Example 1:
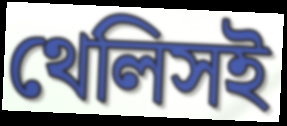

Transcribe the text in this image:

থেলিসই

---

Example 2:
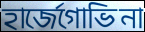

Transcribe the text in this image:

হার্জেগোভিনা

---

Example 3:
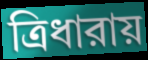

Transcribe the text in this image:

ত্রিধারায়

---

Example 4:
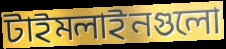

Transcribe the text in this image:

টাইমলাইনগুলো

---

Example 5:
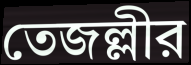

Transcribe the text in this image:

তেজল্লীর